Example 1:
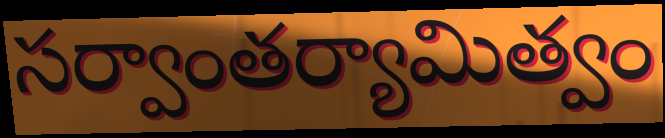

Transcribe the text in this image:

సర్వాంతర్యామిత్వం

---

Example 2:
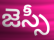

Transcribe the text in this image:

జెస్సీ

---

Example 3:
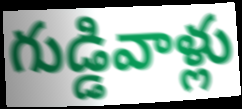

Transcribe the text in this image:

గుడ్డివాళ్లు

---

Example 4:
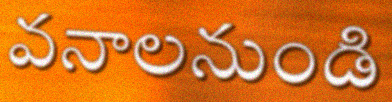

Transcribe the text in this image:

వనాలనుండి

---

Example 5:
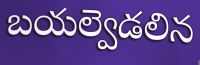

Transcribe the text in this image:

బయల్వెడలిన